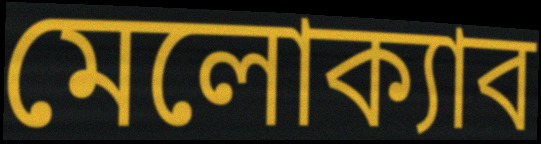
মেলোক্যাব